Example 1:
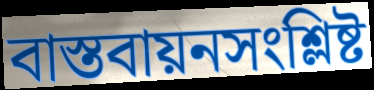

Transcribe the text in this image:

বাস্তবায়নসংশ্লিষ্ট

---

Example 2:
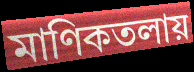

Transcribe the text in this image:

মাণিকতলায়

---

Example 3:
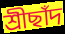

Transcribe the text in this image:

শ্রীছাঁদ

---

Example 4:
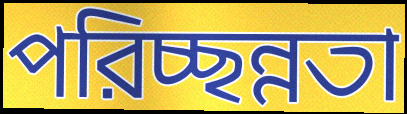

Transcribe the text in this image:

পরিচ্ছন্নতা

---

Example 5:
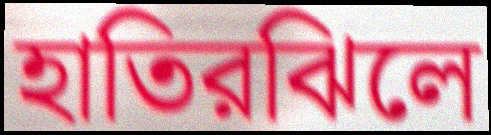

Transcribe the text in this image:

হাতিরঝিলে